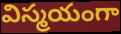
విస్మయంగా